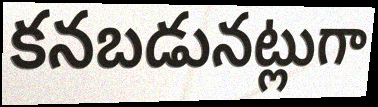
కనబడునట్లుగా